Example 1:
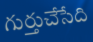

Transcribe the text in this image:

గుర్తుచేసేది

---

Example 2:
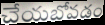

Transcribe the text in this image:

చేయబోవడం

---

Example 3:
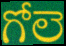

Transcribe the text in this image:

గోలె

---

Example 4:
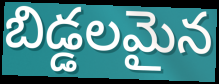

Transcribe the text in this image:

బిడ్డలమైన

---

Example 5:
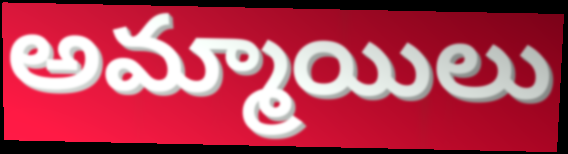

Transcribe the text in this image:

అమ్మాయిలు